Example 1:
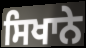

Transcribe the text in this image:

ਸਿਖਾਨੇ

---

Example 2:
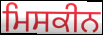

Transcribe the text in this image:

ਮਿਸਕੀਨ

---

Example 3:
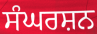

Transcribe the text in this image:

ਸੰਘਰਸ਼ਨ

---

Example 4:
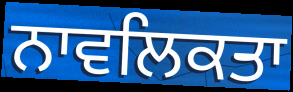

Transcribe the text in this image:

ਨਾਵਲਿਕਤਾ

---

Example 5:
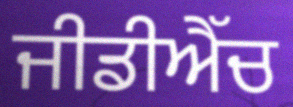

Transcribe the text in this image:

ਜੀਡੀਐੱਚ